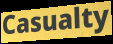
Casualty